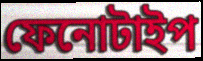
ফেনোটাইপ